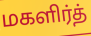
மகளிர்த்